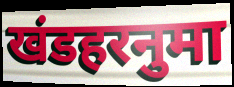
खंडहरनुमा